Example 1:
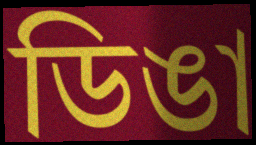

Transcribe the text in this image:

ডিঙা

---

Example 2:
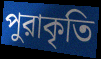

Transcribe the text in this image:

পুরাকৃতি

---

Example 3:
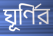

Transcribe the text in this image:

ঘূর্ণির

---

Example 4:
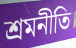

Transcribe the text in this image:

শ্রমনীতি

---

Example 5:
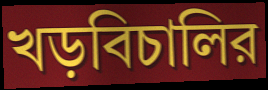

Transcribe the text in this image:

খড়বিচালির